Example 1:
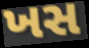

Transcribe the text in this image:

ખસ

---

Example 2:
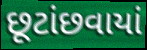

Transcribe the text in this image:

છૂટાંછવાયાં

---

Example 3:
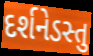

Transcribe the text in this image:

દર્શનેડસ્તુ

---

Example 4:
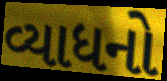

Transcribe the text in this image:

વ્યાધનો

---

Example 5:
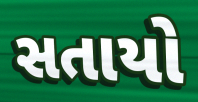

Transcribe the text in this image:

સતાયો